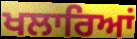
ਖਲਾਰਿਆਂ